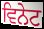
ਵਿਨੇਟ